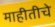
माहीतीचे